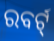
ରବର୍ଟ୍